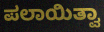
ಪಲಾಯಿತ್ವಾ